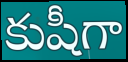
కుషీగా